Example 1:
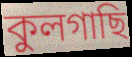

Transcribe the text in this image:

কুলগাছি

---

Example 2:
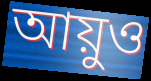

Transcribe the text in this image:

আয়ুও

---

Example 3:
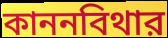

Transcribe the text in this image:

কাননবিথার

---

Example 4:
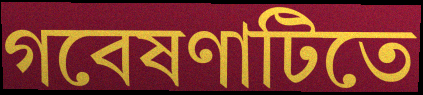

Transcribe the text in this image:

গবেষণাটিতে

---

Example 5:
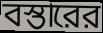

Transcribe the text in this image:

বস্তারের